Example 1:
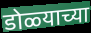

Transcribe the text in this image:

डोळ्याच्या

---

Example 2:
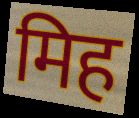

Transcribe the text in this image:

मिह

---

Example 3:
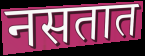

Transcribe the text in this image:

नसतात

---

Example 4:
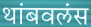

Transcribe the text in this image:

थांबवलंस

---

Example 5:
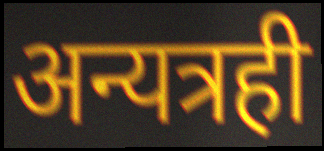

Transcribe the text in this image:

अन्यत्रही